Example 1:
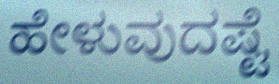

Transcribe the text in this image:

ಹೇಳುವುದಷ್ಟೆ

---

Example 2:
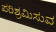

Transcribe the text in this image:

ಪರಿಶ್ರಮಿಸುವ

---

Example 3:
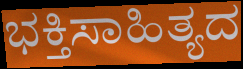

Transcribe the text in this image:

ಭಕ್ತಿಸಾಹಿತ್ಯದ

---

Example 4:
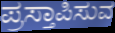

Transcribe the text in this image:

ಪ್ರಸ್ತಾಪಿಸುವ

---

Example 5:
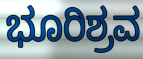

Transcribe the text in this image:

ಭೂರಿಶ್ರವ